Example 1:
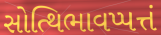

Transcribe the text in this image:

સોત્થિભાવપ્પત્તં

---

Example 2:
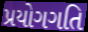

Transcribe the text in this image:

પ્રયોગગતિ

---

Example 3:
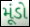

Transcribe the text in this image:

મૂંડો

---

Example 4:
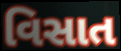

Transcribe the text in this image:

વિસાત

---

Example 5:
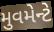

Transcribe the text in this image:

મુવમેન્ટે